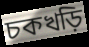
চকখড়ি